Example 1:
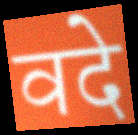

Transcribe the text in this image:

वदे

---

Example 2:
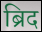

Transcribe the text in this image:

ब्रिद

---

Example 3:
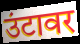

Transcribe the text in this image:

उंटावर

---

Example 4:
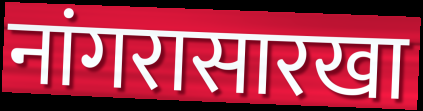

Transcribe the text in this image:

नांगरासारखा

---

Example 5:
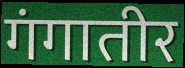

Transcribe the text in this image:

गंगातीर